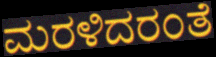
ಮರಳಿದರಂತೆ